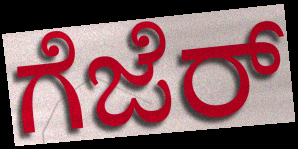
ಗೆಜೆರ್